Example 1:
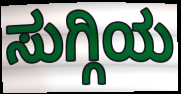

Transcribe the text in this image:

ಸುಗ್ಗಿಯ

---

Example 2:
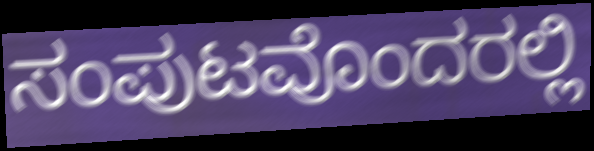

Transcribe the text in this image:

ಸಂಪುಟವೊಂದರಲ್ಲಿ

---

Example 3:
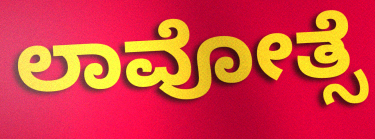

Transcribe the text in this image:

ಲಾವೋತ್ಸೆ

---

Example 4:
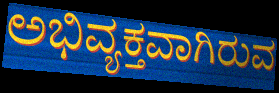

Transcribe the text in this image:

ಅಭಿವ್ಯಕ್ತವಾಗಿರುವ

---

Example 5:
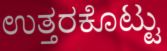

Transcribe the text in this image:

ಉತ್ತರಕೊಟ್ಟು